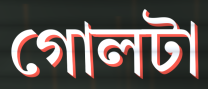
গোলটা